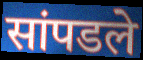
सांपडले